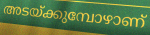
അടയ്ക്കുമ്പോഴാണ്